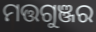
ମତ୍ତଗୁଞ୍ଜର